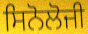
ਸਿਨੋਲੋਜੀ